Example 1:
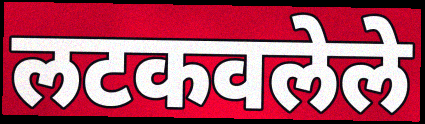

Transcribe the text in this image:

लटकवलेले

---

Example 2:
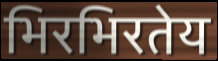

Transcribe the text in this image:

भिरभिरतेय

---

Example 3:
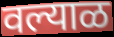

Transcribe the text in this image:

वल्याळ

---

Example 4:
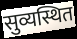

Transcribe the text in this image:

सुव्यस्थित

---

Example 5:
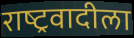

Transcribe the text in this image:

राष्ट्रवादीला